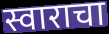
स्वाराचा